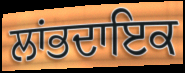
ਲਾਂਭਦਾਇਕ